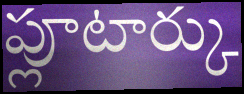
ప్లూటార్కు